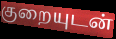
குறையுடன்